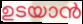
ഉടയാൻ